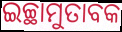
ଇଚ୍ଛାମୁତାବକ